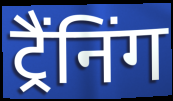
ट्रैंनिंग